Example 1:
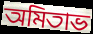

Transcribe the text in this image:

অমিতাভ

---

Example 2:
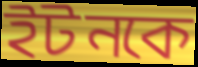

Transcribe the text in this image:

ইটনকে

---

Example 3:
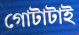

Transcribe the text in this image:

গোটাটাই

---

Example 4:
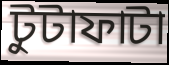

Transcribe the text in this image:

টুটাফাটা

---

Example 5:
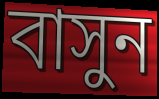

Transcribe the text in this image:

বাসুন